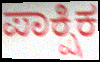
ಪಾಕ್ಷಿಕ